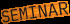
SEMINAR